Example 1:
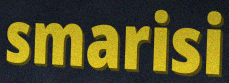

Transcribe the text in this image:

smarisi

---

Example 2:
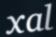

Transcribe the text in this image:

xal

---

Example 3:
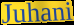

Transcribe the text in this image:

Juhani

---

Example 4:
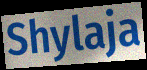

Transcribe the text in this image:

Shylaja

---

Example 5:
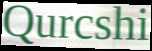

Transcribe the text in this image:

Qurcshi